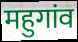
महुगांव